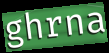
ghrna